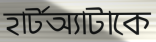
হার্টঅ্যাটাকে